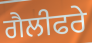
ਗੈਲੀਫਰੇ